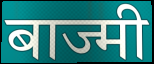
बाज्मी